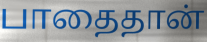
பாதைதான்